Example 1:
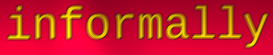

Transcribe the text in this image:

informally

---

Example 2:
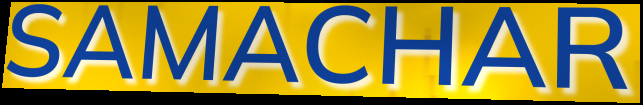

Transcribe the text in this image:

SAMACHAR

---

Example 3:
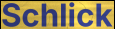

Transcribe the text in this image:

Schlick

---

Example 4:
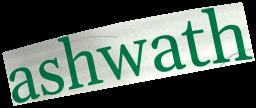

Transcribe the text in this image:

ashwath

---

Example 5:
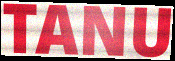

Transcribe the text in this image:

TANU